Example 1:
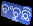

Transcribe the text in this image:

ବଂଚୁଛି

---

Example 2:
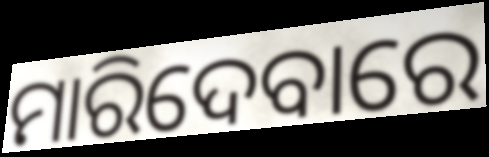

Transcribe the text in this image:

ମାରିଦେବାରେ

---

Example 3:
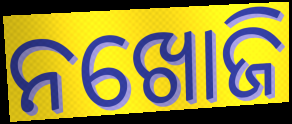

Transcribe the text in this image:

ନଖୋଜି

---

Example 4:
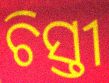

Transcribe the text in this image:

ଚିସ୍ତୀ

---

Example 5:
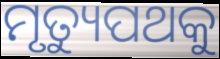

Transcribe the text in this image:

ମୃତ୍ୟୁପଥକୁ